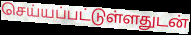
செய்யப்பட்டுள்ளதுடன்